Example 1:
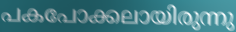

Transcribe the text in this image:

പകപോക്കലായിരുന്നു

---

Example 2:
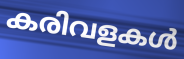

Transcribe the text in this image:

കരിവളകൾ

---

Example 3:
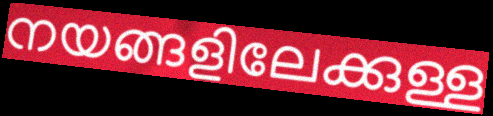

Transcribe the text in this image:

നയങ്ങളിലേക്കുള്ള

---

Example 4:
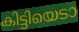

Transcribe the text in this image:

കിട്ടിയെടാ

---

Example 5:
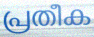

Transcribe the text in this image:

പ്രതീക